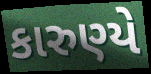
કારુણ્યે